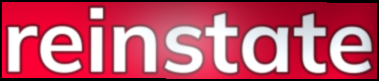
reinstate